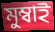
মুম্বাই